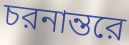
চরনান্তরে